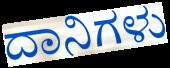
ದಾನಿಗಳು